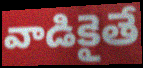
వాడికైతే